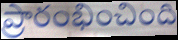
ప్రారంభించింది